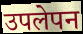
उपलेपन